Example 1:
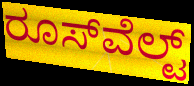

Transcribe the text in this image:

ರೂಸ್‍ವೆಲ್ಟ್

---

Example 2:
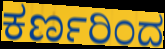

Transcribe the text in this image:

ಕರ್ಣರಿಂದ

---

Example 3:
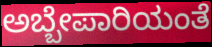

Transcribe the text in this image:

ಅಬ್ಬೇಪಾರಿಯಂತೆ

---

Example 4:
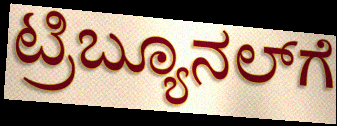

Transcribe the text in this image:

ಟ್ರಿಬ್ಯೂನಲ್‌ಗೆ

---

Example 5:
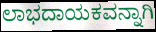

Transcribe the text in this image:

ಲಾಭದಾಯಕವನ್ನಾಗಿ